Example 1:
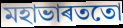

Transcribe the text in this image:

মহাভাৰততো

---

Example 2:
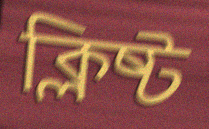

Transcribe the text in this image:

ক্লিষ্ট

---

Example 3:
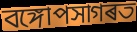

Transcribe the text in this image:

বঙ্গোপসাগৰত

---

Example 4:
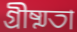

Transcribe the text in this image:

গ্ৰীষ্মতা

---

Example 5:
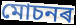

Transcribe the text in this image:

মোচনৰ